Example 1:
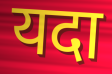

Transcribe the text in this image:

यदा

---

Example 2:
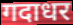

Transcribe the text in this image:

गदाधर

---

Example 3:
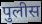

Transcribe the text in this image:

पुलीस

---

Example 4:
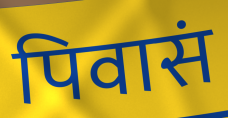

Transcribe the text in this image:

पिवासं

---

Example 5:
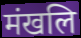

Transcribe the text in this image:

मंखलि